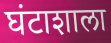
घंटाशाला